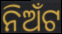
ନିଅଁଟ